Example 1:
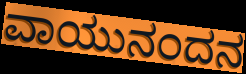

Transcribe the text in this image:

ವಾಯುನಂದನ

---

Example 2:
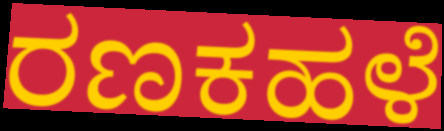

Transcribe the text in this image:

ರಣಕಹಳೆ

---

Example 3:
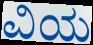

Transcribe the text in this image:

ವಿಯ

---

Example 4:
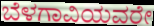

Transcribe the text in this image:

ಬೆಳಗಾವಿಯವರೇ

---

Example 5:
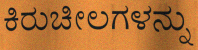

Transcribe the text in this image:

ಕಿರುಚೀಲಗಳನ್ನು